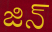
జిన్